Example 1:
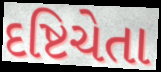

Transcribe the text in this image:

દષ્ટિચેતા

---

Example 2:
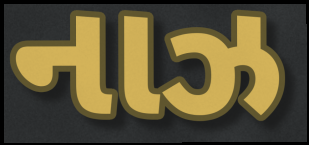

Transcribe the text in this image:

નાઝ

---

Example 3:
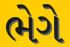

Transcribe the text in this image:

ભેગે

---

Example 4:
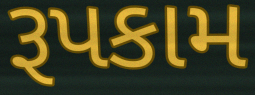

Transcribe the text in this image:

રૂપકામ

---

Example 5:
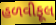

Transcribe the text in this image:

હળવીફૂલ